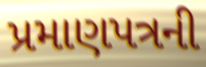
પ્રમાણપત્રની